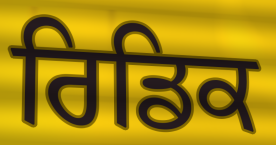
ਰਿਡਿਕ